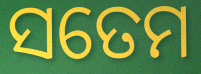
ସତେମ